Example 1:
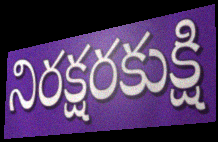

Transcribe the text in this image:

నిరక్షరకుక్షి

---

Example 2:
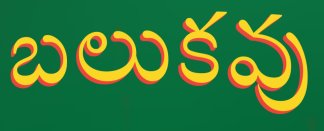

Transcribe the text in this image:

బలుకవు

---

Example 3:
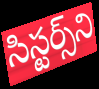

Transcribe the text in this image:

సిస్టర్స్‌ని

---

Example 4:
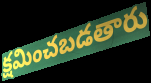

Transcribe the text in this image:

క్షమించబడతారు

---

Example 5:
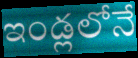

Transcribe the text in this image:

ఇండ్లలోనే